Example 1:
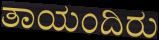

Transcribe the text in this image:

ತಾಯಂದಿರು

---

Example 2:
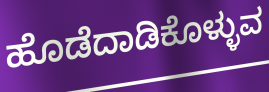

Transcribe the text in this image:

ಹೊಡೆದಾಡಿಕೊಳ್ಳುವ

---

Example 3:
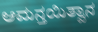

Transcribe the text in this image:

ಆಮನ್ತಯಿತ್ವಾನ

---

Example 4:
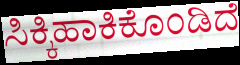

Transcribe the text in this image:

ಸಿಕ್ಕಿಹಾಕಿಕೊಂಡಿದೆ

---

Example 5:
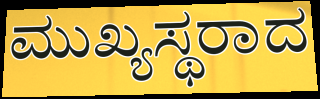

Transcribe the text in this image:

ಮುಖ್ಯಸ್ಥರಾದ